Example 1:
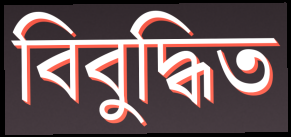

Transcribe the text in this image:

বিবুদ্ধিত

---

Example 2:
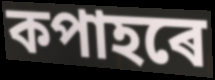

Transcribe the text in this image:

কপাহৰে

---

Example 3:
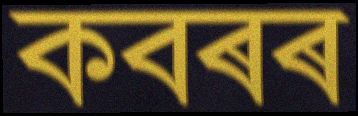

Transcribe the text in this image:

কবৰৰ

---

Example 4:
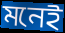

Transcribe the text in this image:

মনেই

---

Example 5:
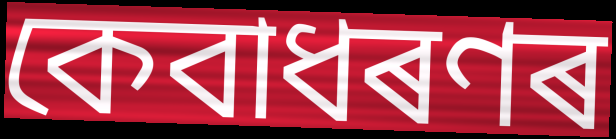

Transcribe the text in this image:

কেবাধৰণৰ